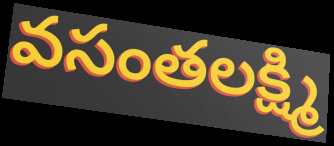
వసంతలక్ష్మి